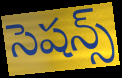
సెషన్స్